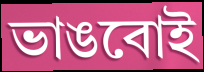
ভাঙবোই